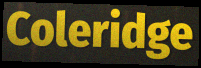
Coleridge